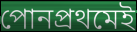
পোনপ্ৰথমেই